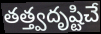
తత్త్వదృష్టిచే